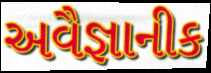
અવૈજ્ઞાનીક